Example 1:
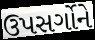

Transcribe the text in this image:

ઉપસર્ગોને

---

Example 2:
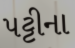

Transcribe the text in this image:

પટ્ટીના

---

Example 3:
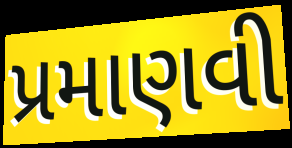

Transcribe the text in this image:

પ્રમાણવી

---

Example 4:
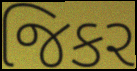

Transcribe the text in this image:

જિકર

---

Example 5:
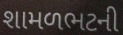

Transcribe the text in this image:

શામળભટની